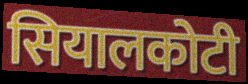
सियालकोटी